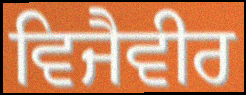
ਵਿਜੈਵੀਰ